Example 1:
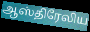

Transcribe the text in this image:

ஆஸ்திரேலிய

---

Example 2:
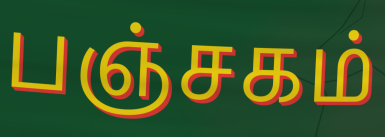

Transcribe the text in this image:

பஞ்சகம்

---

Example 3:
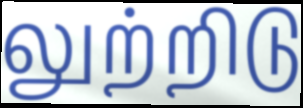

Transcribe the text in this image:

லுற்றிடு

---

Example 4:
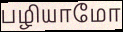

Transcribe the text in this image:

பழியாமோ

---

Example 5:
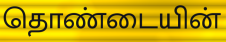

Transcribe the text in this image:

தொண்டையின்